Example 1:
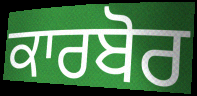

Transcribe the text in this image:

ਕਾਰਬੋਰ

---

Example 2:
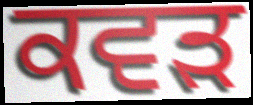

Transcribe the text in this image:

ਕਵੜ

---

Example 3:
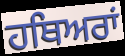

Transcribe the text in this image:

ਹਥਿਅਰਾਂ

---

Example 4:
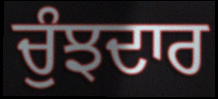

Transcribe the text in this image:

ਚੁੰਝਦਾਰ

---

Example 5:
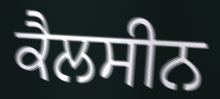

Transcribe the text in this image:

ਕੈਲਸੀਨ